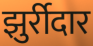
झुर्रीदार